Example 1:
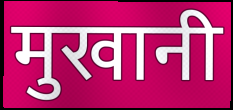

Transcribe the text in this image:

मुखानी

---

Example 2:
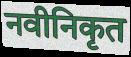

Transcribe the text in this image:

नवीनिकृत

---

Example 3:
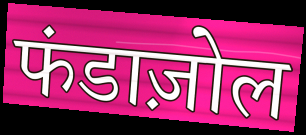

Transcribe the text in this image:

फंडाज़ोल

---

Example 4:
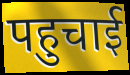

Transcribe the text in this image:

पहुचाई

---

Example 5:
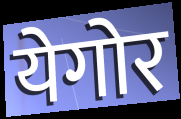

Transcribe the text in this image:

येगोर